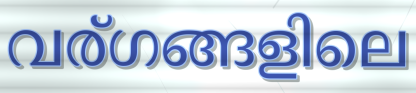
വര്ഗങ്ങളിലെ